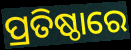
ପ୍ରତିଷ୍ଠାରେ